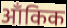
आँकिक